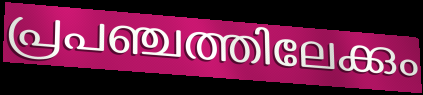
പ്രപഞ്ചത്തിലേക്കും